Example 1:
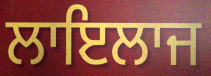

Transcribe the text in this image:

ਲਾਇਲਾਜ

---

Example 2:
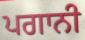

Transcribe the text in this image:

ਪਗਾਨੀ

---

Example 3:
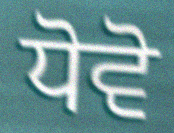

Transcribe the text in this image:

ਧੋਵੋ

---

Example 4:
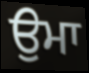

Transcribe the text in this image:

ਉਮਾ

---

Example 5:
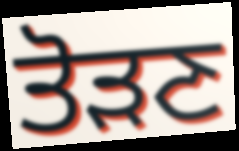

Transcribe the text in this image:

ਤੋੜਣ